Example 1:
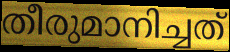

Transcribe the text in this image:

തീരുമാനിച്ചത്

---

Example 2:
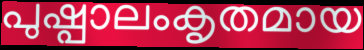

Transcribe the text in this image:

പുഷ്പാലംകൃതമായ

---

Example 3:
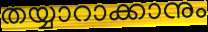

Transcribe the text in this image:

തയ്യാറാക്കാനും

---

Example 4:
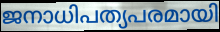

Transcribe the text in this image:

ജനാധിപത്യപരമായി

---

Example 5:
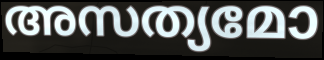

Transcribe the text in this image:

അസത്യമോ